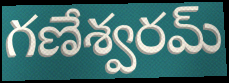
గణేశ్వరమ్